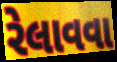
રેલાવવા